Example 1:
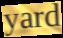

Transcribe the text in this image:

yard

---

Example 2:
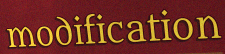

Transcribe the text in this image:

modification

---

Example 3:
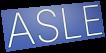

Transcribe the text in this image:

ASLE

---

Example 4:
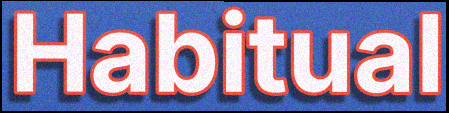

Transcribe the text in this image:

Habitual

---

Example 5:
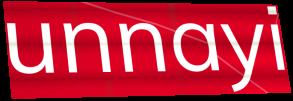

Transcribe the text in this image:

unnayi